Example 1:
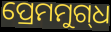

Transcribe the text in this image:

ପ୍ରେମମୁଗ୍‌ଧ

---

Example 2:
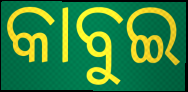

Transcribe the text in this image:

କାବୁଇ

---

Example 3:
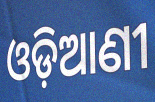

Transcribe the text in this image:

ଓଡ଼ିଆଣୀ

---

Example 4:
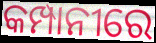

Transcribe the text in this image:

କମ୍ପାନୀରେ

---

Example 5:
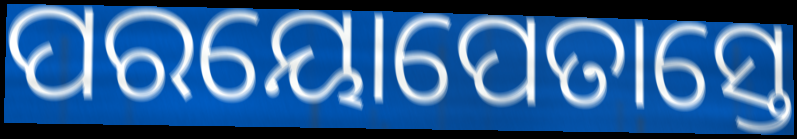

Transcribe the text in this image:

ପରୟୋପେତାସ୍ତେ